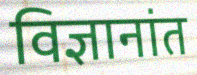
विज्ञानांत